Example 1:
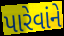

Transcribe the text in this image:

પારેવાંને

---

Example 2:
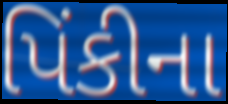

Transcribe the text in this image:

પિંકીના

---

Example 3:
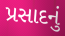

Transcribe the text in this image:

પ્રસાદનું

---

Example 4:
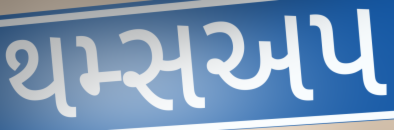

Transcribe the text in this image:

થમ્સઅપ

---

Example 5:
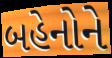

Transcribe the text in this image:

બહેનોને